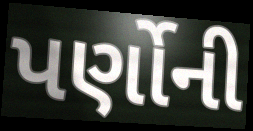
પર્ણોની